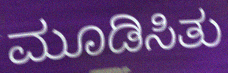
ಮೂಡಿಸಿತು